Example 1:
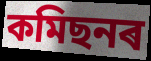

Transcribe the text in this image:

কমিছনৰ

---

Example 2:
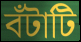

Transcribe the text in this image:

বঁটাটি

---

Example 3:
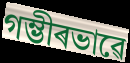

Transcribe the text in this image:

গম্ভীৰভাৱে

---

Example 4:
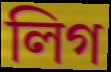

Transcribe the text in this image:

লিগ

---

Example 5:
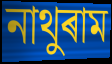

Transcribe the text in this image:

নাথুৰাম